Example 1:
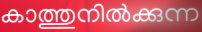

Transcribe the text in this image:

കാത്തുനിൽക്കുന്ന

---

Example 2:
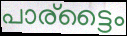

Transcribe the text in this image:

പാര്ട്ടൈം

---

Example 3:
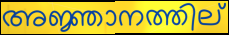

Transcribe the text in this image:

അജ്ഞാനത്തില്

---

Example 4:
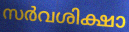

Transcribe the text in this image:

സർവശിക്ഷാ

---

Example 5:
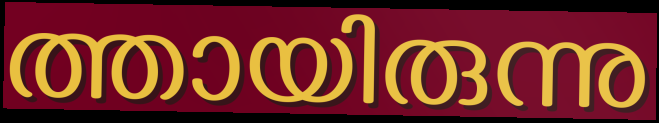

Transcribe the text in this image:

ത്തായിരുന്നു